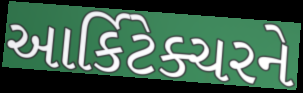
આર્કિટેક્ચરને